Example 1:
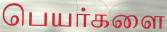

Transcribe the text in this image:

பெயர்களை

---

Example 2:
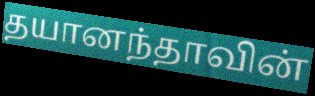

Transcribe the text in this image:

தயானந்தாவின்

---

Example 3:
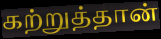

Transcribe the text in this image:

கற்றுத்தான்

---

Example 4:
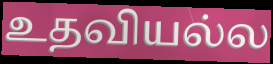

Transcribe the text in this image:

உதவியல்ல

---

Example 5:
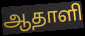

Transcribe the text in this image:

ஆதாளி